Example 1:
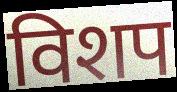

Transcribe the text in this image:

विशप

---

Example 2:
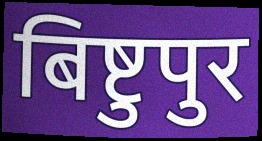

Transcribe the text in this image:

बिष्टुपुर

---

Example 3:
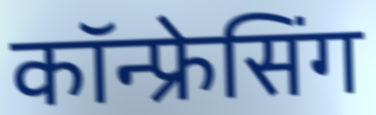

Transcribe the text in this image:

कॉन्फ्रेसिंग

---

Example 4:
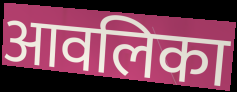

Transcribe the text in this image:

आवलिका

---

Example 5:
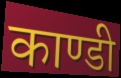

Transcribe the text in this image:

काण्डी